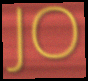
JO